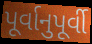
પૂર્વાનુપૂર્વી